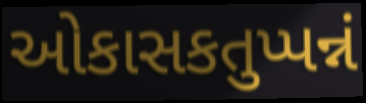
ઓકાસકતુપ્પન્નં